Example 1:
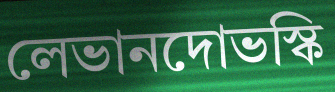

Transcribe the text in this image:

লেভানদোভস্কি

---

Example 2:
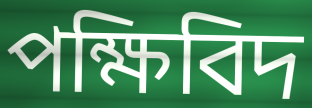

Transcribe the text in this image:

পক্ষিবিদ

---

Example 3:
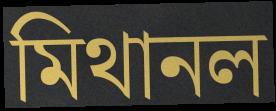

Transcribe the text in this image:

মিথানল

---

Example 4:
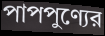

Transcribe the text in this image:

পাপপুণ্যের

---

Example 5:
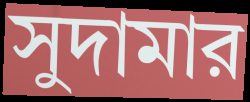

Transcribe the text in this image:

সুদামার